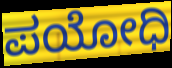
ಪಯೋಧಿ